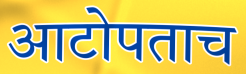
आटोपताच